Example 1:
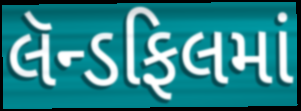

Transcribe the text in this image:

લૅન્ડફિલમાં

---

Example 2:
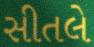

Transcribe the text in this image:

સીતલે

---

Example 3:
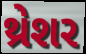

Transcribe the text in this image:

થ્રેશર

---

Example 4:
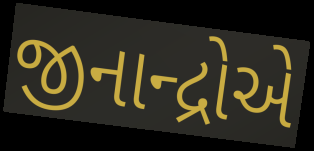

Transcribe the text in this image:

જીનાન્દ્રોએ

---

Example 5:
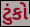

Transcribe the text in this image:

ટુંકો